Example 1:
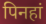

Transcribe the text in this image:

पिनहां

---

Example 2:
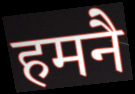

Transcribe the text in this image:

हमनै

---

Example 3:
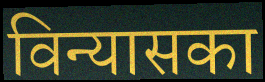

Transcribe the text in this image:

विन्यासका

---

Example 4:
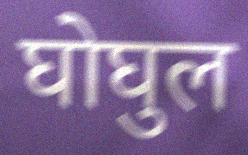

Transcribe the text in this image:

घोघुल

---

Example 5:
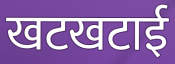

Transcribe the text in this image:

खटखटाई